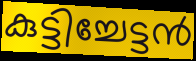
കുട്ടിച്ചേട്ടൻ